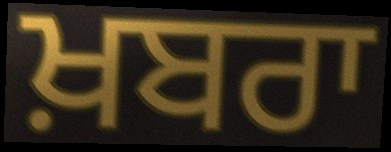
ਖ਼ਬਰਾ